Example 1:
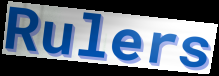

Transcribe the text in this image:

Rulers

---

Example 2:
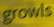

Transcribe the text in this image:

growls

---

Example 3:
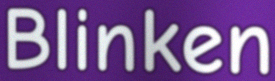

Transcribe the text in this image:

Blinken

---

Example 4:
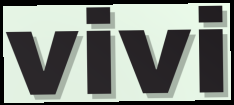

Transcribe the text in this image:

vivi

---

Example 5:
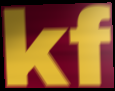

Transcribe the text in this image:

kf